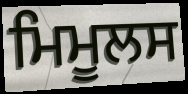
ਮਿਮੂਲਸ